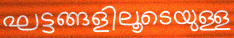
ഘട്ടങ്ങളിലൂടെയുള്ള